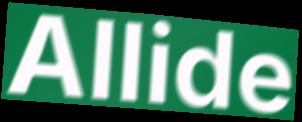
Allide